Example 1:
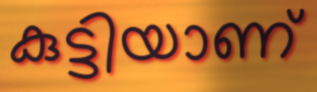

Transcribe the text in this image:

കുട്ടിയാണ്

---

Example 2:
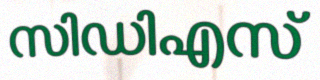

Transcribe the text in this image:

സിഡിഎസ്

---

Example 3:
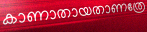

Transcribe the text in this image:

കാണാതായതാണത്രേ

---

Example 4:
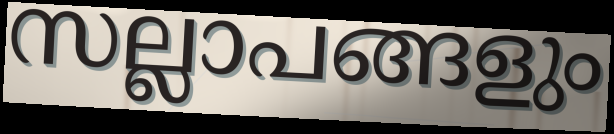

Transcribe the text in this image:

സല്ലാപങ്ങളും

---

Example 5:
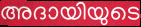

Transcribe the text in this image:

അദായിയുടെ